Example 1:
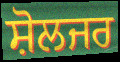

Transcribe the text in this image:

ਸ਼ੋਲਜਰ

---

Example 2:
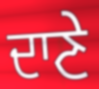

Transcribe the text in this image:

ਦਾਣੇ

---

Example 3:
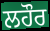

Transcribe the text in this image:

ਲਹੌਰ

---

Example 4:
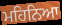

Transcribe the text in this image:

ਮਹਿਨਿਆ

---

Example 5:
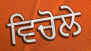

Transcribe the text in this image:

ਵਿਚੋਲੇ